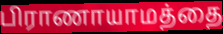
பிராணாயாமத்தை